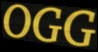
OGG